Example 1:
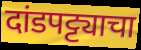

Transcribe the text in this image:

दांडपट्ट्याचा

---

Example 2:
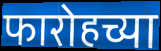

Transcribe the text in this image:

फारोहच्या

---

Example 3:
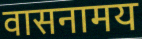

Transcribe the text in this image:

वासनामय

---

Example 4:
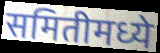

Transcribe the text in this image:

समितीमध्ये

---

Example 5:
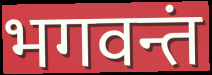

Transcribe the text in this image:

भगवन्तं